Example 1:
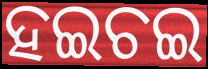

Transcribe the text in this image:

ହଇଚଇ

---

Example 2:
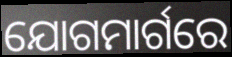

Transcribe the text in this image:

ଯୋଗମାର୍ଗରେ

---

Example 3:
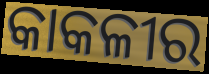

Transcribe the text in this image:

କାକଳୀର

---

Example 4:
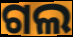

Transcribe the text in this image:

ଗଲ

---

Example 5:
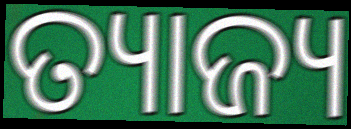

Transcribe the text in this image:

ତ୍ୟାଜ୍ୟ